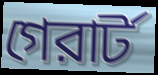
গেরার্ট